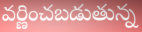
వర్ణించబడుతున్న